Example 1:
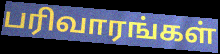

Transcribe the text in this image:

பரிவாரங்கள்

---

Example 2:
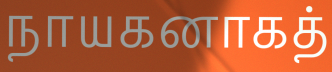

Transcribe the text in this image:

நாயகனாகத்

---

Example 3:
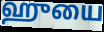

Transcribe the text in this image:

ஹுயை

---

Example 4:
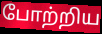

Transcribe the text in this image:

போற்றிய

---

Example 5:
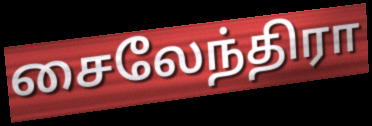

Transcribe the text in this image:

சைலேந்திரா